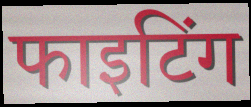
फाइटिंग